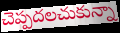
చెప్పదలచుకున్నా